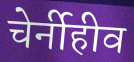
चेर्नीहीव